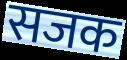
सजक